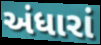
અંધારાં